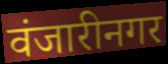
वंजारीनगर